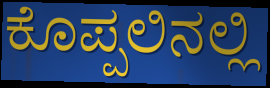
ಕೊಪ್ಪಲಿನಲ್ಲಿ